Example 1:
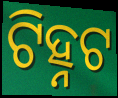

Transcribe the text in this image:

ଟିହ୍ନଟ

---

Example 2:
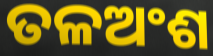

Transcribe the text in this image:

ତଳଅଂଶ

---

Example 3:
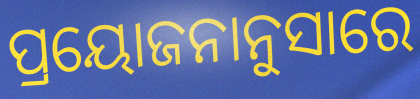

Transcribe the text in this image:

ପ୍ରୟୋଜନାନୁସାରେ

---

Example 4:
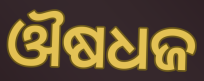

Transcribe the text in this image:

ଔଷଧଜ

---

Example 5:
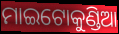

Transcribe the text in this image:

ମାଇଟୋକୁଣ୍ଡିଆ